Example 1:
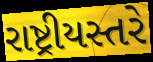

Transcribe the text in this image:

રાષ્ટ્રીયસ્તરે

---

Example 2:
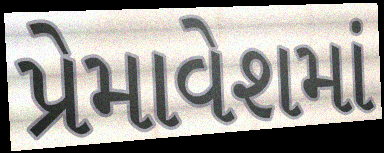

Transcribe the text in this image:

પ્રેમાવેશમાં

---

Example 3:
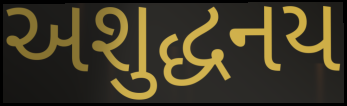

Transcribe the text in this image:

અશુદ્ધનય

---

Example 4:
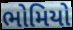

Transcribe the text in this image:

ભોમિયો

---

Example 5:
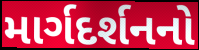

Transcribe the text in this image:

માર્ગદર્શનનો